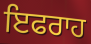
ਇਫਰਾਹ